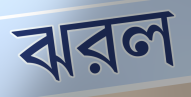
ঝরল